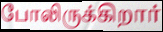
போலிருக்கிறார்